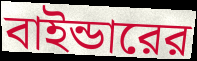
বাইন্ডারের